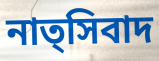
নাত্সিবাদ